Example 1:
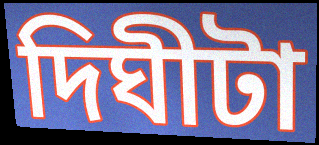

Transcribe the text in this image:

দিঘীটা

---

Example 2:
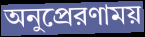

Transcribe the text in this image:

অনুপ্রেরণাময়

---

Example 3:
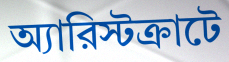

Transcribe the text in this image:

অ্যারিস্টক্রাটে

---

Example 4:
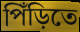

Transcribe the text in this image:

পিঁড়িতে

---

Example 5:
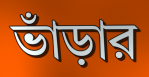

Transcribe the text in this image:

ভাঁড়ার